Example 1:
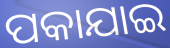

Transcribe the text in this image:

ପକାଯାଇ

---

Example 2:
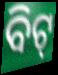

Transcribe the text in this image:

ବିଟ୍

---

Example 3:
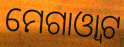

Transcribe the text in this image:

ମେଗାଓ୍ଵାଟ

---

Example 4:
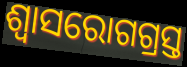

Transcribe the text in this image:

ଶ୍ୱାସରୋଗଗ୍ରସ୍ତ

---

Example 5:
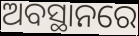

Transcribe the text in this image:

ଅବସ୍ଥାନରେ